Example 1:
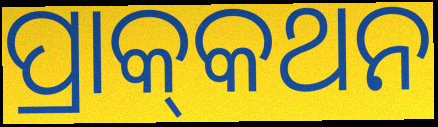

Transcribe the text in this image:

ପ୍ରାକ୍‌କଥନ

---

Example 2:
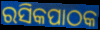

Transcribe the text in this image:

ରସିକପାଠକ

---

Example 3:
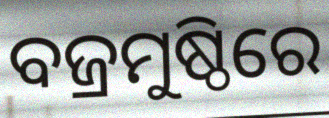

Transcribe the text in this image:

ବଜ୍ରମୁଷ୍ଠିରେ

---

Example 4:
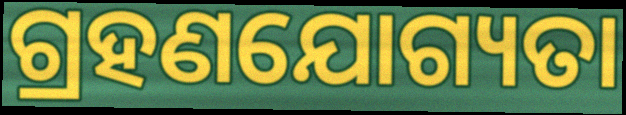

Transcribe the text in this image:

ଗ୍ରହଣଯୋଗ୍ୟତା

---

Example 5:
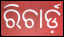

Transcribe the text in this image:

ରିଚାର୍ଡ଼